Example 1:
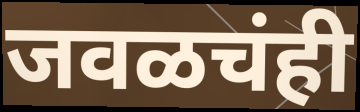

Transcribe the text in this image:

जवळचंही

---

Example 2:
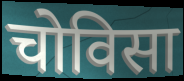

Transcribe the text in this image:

चोविसा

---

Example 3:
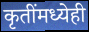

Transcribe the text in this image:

कृतींमध्येही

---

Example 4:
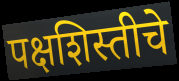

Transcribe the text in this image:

पक्षशिस्तीचे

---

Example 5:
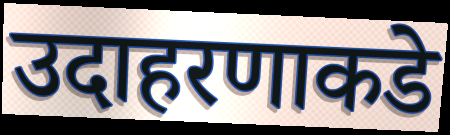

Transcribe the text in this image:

उदाहरणाकडे